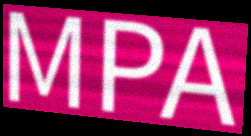
MPA